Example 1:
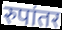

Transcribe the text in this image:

रुपांतर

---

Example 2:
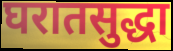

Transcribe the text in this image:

घरातसुद्धा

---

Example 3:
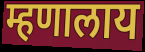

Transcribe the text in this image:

म्हणालाय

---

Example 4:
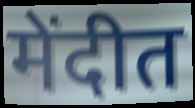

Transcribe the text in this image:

मेंदीत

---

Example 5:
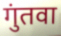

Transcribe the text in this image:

गुंतवा